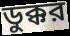
ডুক্কর